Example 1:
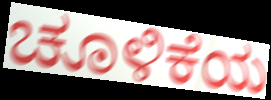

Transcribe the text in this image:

ಚೂಳಿಕೆಯ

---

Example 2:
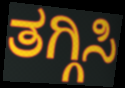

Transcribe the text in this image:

ತಗ್ಗಿಸಿ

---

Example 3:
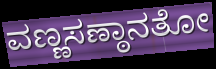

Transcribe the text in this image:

ವಣ್ಣಸಣ್ಠಾನತೋ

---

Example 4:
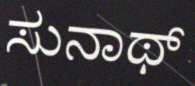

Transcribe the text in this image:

ಸುನಾಥ್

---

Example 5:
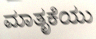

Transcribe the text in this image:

ಮಾತೃಕೆಯು